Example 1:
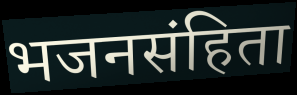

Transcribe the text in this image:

भजनसंहिता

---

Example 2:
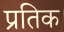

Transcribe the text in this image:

प्रतिक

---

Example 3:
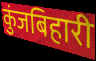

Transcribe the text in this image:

कुंजबिहारी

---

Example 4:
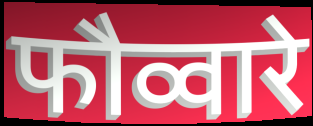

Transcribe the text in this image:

फौव्वारे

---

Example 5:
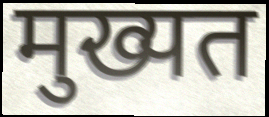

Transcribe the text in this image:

मुख्‍यत